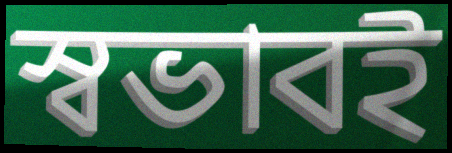
স্বভাবই